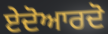
ਏਦੋਆਰਦੋ